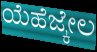
ಯೆಹೆಜ್ಕೇಲ